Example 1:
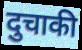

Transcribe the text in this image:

दुचाकी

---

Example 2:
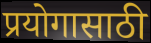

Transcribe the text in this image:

प्रयोगासाठी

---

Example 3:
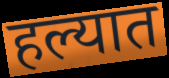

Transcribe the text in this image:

हल्यात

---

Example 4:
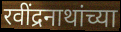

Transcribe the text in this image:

रवींद्रनाथांच्या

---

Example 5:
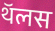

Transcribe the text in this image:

थॅलस